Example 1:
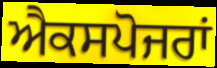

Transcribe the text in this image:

ਐਕਸਪੋਜਰਾਂ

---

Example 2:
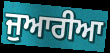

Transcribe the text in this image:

ਜੁਆਰੀਆ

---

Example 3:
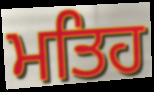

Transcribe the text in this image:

ਮਤਿਹ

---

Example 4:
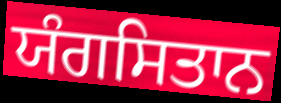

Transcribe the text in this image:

ਯੰਗਸਿਤਾਨ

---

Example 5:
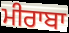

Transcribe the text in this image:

ਮੀਰਾਬਾ